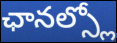
ఛానల్స్లో